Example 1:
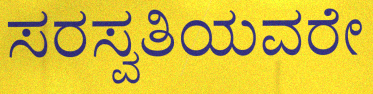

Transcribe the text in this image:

ಸರಸ್ವತಿಯವರೇ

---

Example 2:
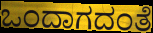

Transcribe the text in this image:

ಒಂದಾಗದಂತೆ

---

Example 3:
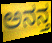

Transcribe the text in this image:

ಅನನ್ತ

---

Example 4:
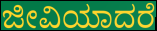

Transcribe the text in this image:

ಜೀವಿಯಾದರೆ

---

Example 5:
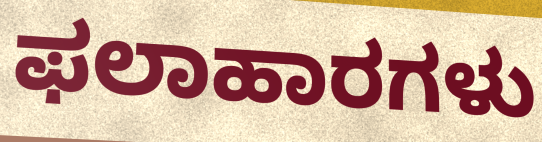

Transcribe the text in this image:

ಫಲಾಹಾರಗಳು